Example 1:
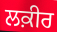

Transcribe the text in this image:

ਲਕ਼ੀਰ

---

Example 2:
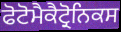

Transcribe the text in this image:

ਫੋਟੋਮੈਕੈਟ੍ਰੋਨਿਕਸ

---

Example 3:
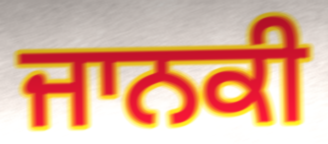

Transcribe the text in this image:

ਜਾਨਕੀ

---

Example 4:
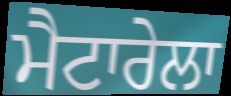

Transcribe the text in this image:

ਮੈਟਾਰੇਲਾ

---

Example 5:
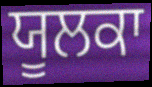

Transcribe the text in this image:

ਯੂਲਕਾ